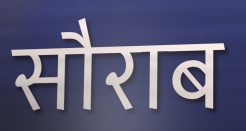
सौराब